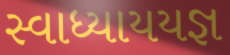
સ્વાધ્યાયયજ્ઞ